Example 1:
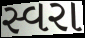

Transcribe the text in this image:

સ્વરા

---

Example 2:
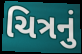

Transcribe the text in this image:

ચિત્રનું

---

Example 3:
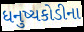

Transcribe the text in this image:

ધનુષ્યકોડીના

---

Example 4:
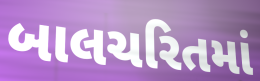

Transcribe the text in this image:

બાલચરિતમાં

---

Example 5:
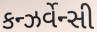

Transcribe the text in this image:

કન્ઝર્વેન્સી